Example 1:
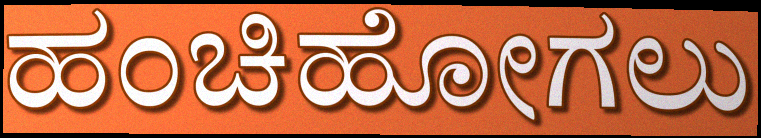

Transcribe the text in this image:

ಹಂಚಿಹೋಗಲು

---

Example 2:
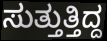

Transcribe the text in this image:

ಸುತ್ತುತ್ತಿದ್ದ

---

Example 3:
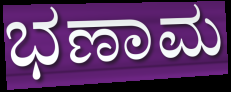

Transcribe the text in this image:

ಭಣಾಮ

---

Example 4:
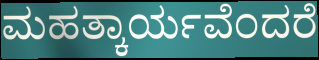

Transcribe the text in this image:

ಮಹತ್ಕಾರ್ಯವೆಂದರೆ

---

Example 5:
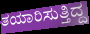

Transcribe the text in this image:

ತಯಾರಿಸುತ್ತಿದ್ದ